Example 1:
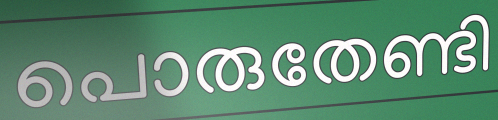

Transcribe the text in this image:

പൊരുതേണ്ടി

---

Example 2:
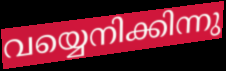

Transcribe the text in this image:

വയ്യെനിക്കിന്നു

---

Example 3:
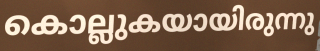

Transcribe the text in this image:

കൊല്ലുകയായിരുന്നു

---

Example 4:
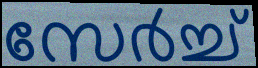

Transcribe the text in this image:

സേർച്ച്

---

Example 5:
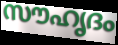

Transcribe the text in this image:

സൗഹൃദം